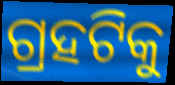
ଗ୍ରହଟିକୁ